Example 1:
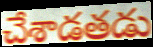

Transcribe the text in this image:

చేశాడతడు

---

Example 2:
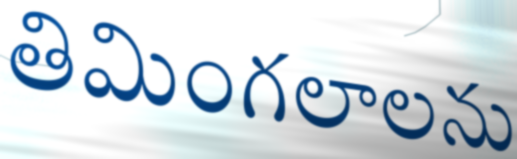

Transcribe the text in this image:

తిమింగలాలను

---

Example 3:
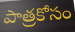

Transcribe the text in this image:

పాత్రకోసం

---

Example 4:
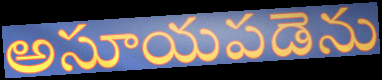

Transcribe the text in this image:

అసూయపడెను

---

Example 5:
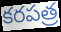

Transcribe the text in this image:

కరపత్ర